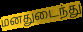
மனதுடைந்து